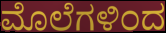
ಮೊಲೆಗಳಿಂದ